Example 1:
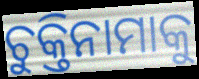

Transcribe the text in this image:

ଚୁକ୍ତିନାମାକୁ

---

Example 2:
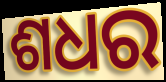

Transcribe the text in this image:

ଶଧର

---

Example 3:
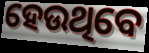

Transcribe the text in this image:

ହେଉଥିବେ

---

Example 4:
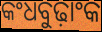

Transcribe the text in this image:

କଂଧବୁଢ଼ାଂକ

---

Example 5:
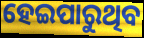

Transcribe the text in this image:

ହେଇପାରୁଥିବ